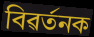
বিৱৰ্তনক